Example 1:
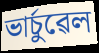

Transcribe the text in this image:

ভাৰ্চুৱেল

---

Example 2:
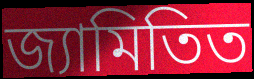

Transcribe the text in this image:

জ্যামিতিত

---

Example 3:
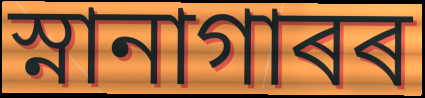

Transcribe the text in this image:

স্নানাগাৰৰ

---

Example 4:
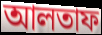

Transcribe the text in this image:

আলতাফ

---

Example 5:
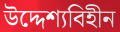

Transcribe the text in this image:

উদ্দেশ্যবিহীন